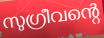
സുഗ്രീവന്റെ